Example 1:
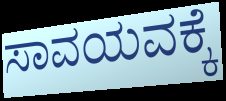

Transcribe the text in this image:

ಸಾವಯವಕ್ಕೆ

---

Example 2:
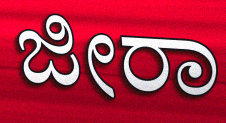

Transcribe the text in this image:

ಜೀರಾ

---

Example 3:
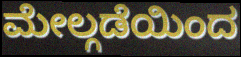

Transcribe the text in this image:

ಮೇಲ್ಗಡೆಯಿಂದ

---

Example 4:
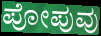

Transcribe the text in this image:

ಪೋಪುವು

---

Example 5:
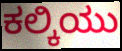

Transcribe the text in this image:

ಕಲ್ಕಿಯು